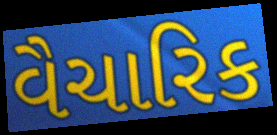
વૈચારિક